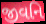
જીવનિ